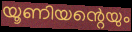
യൂണിയന്റെയും